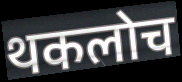
थकलोच